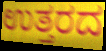
ಉತ್ತರದ